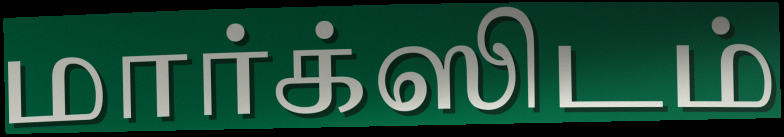
மார்க்ஸிடம்